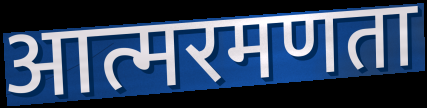
आत्मरमणता